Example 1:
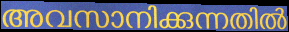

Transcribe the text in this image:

അവസാനിക്കുന്നതിൽ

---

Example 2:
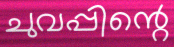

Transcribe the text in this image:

ചുവപ്പിന്റെ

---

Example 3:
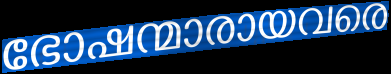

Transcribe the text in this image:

ഭോഷന്മാരായവരെ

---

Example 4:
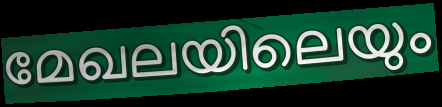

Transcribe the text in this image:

മേഖലയിലെയും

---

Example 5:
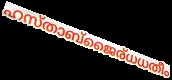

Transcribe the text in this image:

ഹസ്താബ്ജൈര്ധധതീം